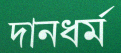
দানধর্ম